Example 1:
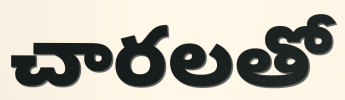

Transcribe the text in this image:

చారలతో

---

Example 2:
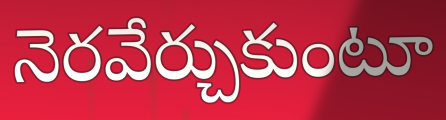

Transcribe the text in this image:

నెరవేర్చుకుంటూ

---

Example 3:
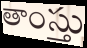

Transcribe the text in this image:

తాంస్తు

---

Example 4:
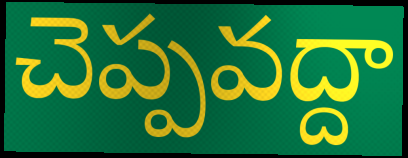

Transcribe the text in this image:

చెప్పవద్దా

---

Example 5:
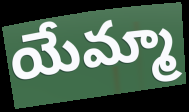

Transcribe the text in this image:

యేమ్మా